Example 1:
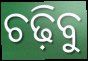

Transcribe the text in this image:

ଚଢ଼ିବୁ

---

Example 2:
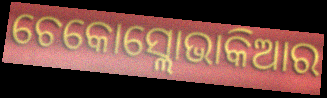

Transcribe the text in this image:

ଚେକୋସ୍ଲୋଭାକିଆର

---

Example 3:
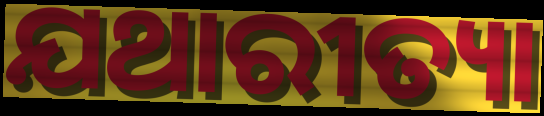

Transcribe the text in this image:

ଯଥାରୀତ୍ୟା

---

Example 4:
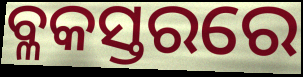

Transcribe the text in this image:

ବ୍ଳକସ୍ତରରେ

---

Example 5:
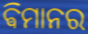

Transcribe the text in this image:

ଵିମାନର